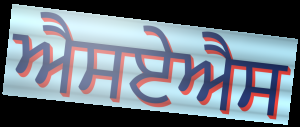
ਐਸਏਐਸ